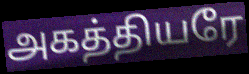
அகத்தியரே